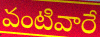
వంటివారే